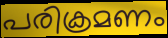
പരിക്രമണം